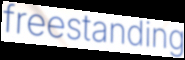
freestanding